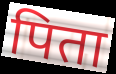
पिता